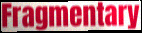
Fragmentary